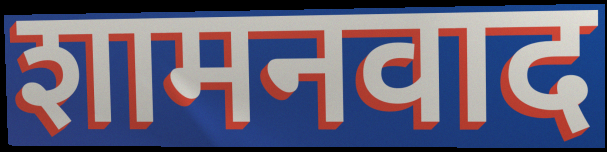
शामनवाद